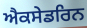
ਐਕਸੇਡਰਿਨ